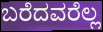
ಬರೆದವರೆಲ್ಲ